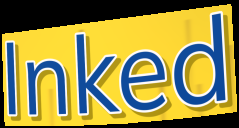
Inked